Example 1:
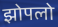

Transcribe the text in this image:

झोपलो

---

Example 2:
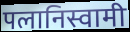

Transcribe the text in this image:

पलानिस्वामी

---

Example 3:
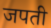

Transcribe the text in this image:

जपती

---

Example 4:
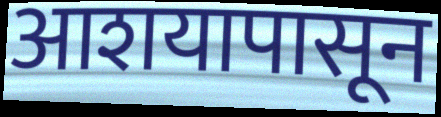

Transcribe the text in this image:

आशयापासून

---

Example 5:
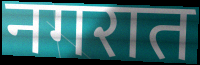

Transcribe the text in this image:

नगरात